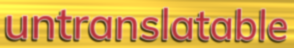
untranslatable